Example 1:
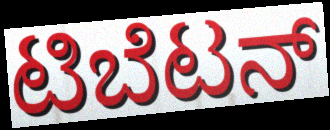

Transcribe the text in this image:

ಟಿಬೆಟನ್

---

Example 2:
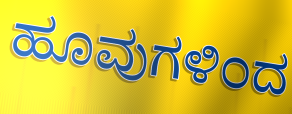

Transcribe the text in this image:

ಹೂವುಗಳಿಂದ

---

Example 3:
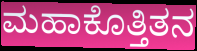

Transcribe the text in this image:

ಮಹಾಕೊತ್ತಿತನ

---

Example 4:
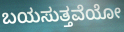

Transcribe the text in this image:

ಬಯಸುತ್ತವೆಯೋ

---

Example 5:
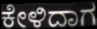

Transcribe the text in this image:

ಕೇಳಿದಾಗ